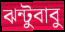
ঝন্টুবাবু